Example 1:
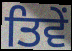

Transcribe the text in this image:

ਤਿਵੇਂ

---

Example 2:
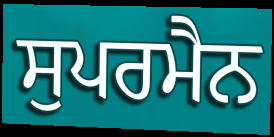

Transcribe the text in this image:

ਸੁਪਰਮੈਨ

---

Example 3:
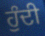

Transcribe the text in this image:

ਹੁੰਦੀ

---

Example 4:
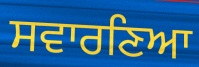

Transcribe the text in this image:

ਸਵਾਰਣਿਆ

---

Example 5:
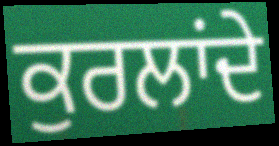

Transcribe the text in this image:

ਕੁਰਲਾਂਦੇ